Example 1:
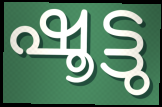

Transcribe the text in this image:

ഷൂട്ടു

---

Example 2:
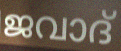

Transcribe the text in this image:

ജവാദ്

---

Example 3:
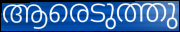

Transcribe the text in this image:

ആരെടുത്തു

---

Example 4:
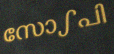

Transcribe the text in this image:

സോഽപി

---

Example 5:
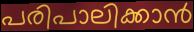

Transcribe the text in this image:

പരിപാലിക്കാൻ